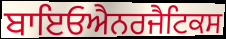
ਬਾਇਓਐਨਰਜੈਟਿਕਸ